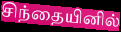
சிந்தையினில்